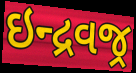
ઇન્દ્રવજ્ર